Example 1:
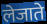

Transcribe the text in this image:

लेजाते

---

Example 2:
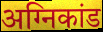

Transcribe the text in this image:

अग्‍निकांड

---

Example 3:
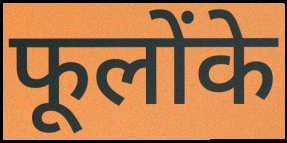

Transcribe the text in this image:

फूलोंके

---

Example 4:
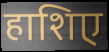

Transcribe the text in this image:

हाशिए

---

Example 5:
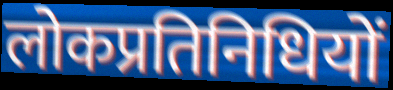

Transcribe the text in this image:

लोकप्रतिनिधियों